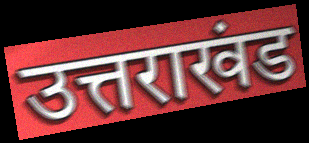
उत्तराखंड